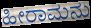
ಹೀರಾಮನು